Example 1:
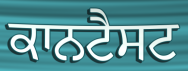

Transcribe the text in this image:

ਕਾਨਟੈਸਟ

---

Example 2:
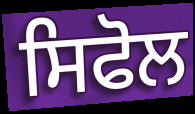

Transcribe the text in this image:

ਸਿਫੋਲ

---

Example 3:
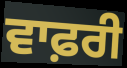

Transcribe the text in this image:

ਵਾਫ਼ਰੀ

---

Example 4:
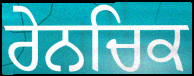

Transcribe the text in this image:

ਰੇਨਚਿਕ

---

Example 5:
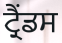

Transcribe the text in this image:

ਟ੍ਰੈਂਡਸ